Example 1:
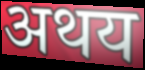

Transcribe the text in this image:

अथय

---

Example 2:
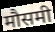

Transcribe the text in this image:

मौसमी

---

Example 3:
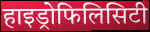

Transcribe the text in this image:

हाइड्रोफिलिसिटी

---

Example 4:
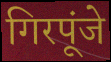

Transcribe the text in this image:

गिरपूंजे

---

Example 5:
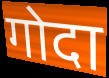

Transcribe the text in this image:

गोदा